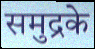
समुद्रके